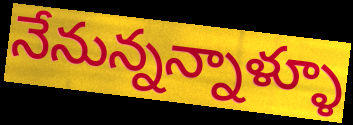
నేనున్నన్నాళ్ళూ